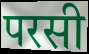
परसी